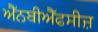
ਐੱਨਬੀਐੱਫਸੀਜ਼